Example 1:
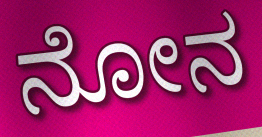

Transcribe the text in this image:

ನೋನ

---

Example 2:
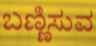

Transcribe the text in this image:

ಬಣ್ಣಿಸುವ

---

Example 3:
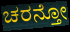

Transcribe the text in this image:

ಚರನ್ತೋ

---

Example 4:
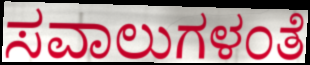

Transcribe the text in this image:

ಸವಾಲುಗಳಂತೆ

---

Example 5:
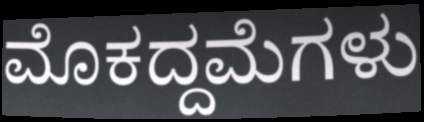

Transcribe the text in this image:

ಮೊಕದ್ದಮೆಗಳು